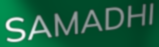
SAMADHI